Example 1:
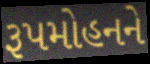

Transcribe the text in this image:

રૂપમોહનને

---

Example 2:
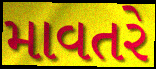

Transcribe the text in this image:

માવતરે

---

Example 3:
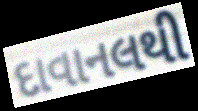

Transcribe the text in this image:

દાવાનલથી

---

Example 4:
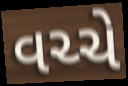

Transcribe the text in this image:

વચ્ચે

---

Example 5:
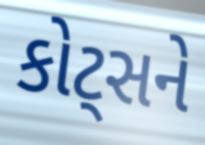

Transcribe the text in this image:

કોટ્સને